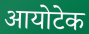
आयोटेक